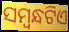
ସମ୍ବନ୍ଧଟିଏ